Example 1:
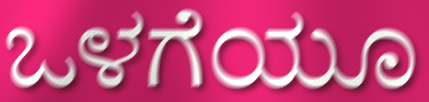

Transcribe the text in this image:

ಒಳಗೆಯೂ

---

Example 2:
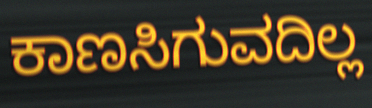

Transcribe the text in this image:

ಕಾಣಸಿಗುವದಿಲ್ಲ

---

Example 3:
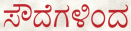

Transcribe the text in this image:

ಸೌದೆಗಳಿಂದ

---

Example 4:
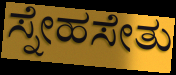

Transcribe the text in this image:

ಸ್ನೇಹಸೇತು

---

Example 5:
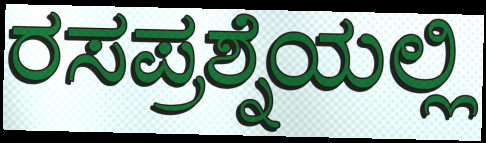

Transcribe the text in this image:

ರಸಪ್ರಶ್ನೆಯಲ್ಲಿ